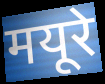
मयूरे